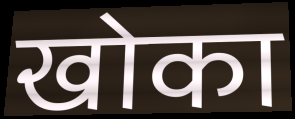
खोका